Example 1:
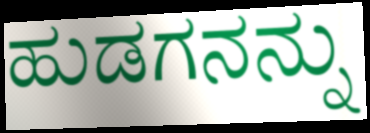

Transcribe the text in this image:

ಹುಡಗನನ್ನು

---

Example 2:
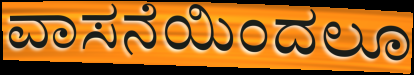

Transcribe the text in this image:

ವಾಸನೆಯಿಂದಲೂ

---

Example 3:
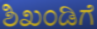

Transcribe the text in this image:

ಶಿಖಂಡಿಗೆ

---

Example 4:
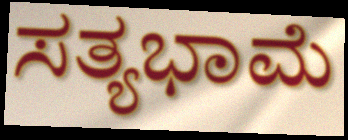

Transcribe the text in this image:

ಸತ್ಯಭಾಮೆ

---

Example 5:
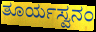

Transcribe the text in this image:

ತೂರ್ಯಸ್ವನಂ